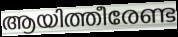
ആയിത്തീരേണ്ട